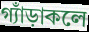
গ্যাঁড়াকলে